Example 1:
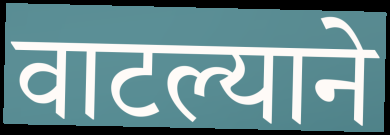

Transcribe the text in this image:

वाटल्याने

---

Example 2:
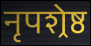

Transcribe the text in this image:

नृपश्रेष्ठ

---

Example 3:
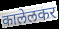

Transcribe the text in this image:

कालेलकर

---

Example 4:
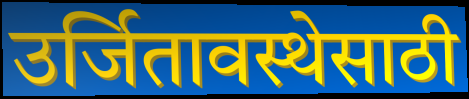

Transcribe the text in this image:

उर्जितावस्थेसाठी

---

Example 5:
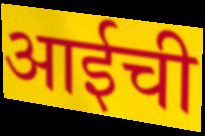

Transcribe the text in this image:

आईची